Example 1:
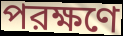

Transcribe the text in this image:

পরক্ষণে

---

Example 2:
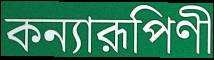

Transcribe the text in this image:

কন্যারূপিণী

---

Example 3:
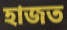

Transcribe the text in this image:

হাজত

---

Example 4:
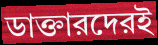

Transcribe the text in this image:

ডাক্তারদেরই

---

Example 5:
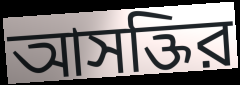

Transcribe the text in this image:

আসক্তির